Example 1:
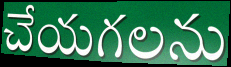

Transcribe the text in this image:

చేయగలను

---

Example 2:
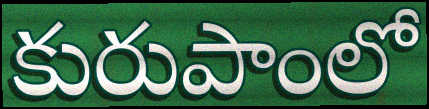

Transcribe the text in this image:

కురుపాంలో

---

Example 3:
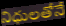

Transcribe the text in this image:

నిధులతోనే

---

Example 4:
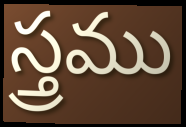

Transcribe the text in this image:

స్త్రము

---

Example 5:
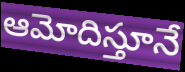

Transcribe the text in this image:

ఆమోదిస్తూనే